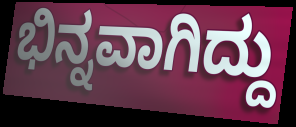
ಭಿನ್ನವಾಗಿದ್ದು